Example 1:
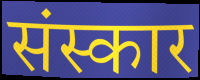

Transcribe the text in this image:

संस्कार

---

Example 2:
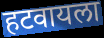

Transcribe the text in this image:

हटवायला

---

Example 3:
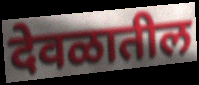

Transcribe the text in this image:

देवळातील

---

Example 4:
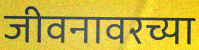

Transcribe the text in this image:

जीवनावरच्या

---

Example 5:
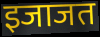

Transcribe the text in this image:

इजाजत